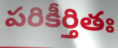
పరికీర్తితః